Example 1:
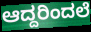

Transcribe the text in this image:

ಆದ್ದರಿಂದಲೆ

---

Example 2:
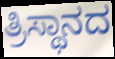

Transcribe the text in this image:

ತ್ರಿಸ್ಥಾನದ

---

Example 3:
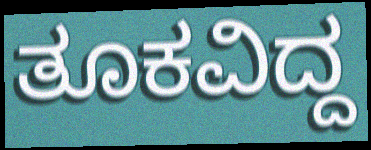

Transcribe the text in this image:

ತೂಕವಿದ್ದ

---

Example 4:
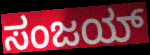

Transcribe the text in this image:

ಸಂಜಯ್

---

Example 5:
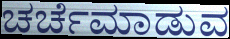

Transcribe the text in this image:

ಚರ್ಚೆಮಾಡುವ